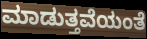
ಮಾಡುತ್ತವೆಯಂತೆ